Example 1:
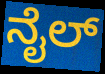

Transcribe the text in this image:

ನೈಲ್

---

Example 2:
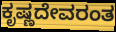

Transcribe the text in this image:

ಕೃಷ್ಣದೇವರಂತ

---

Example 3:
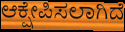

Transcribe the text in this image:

ಆಕ್ಷೇಪಿಸಲಾಗಿದೆ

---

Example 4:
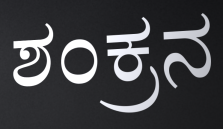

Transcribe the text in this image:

ಶಂಕ್ರನ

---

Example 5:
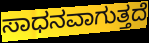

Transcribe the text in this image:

ಸಾಧನವಾಗುತ್ತದೆ